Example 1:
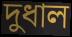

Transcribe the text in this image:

দুধাল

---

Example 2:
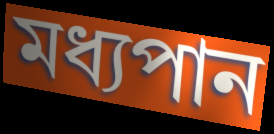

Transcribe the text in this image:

মধ্যপান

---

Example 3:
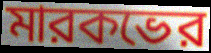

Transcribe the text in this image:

মারকভের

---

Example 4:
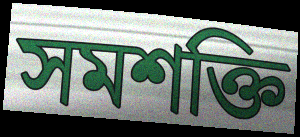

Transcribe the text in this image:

সমশক্তি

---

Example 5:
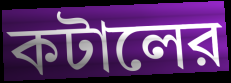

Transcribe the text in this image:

কটালের